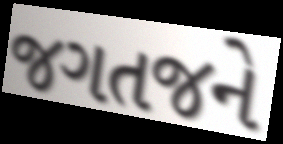
જગતજને